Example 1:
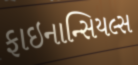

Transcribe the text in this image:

ફાઇનાન્સિયલ્સ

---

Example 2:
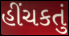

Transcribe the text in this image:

હીંચકતું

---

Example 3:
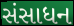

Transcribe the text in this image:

સંસાધન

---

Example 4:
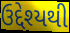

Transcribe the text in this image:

ઉદ્દેશ્યથી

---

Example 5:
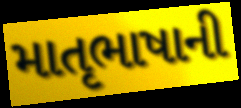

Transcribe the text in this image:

માતૃભાષાની